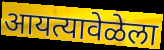
आयत्यावेळेला